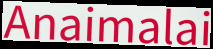
Anaimalai